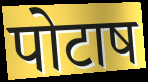
पोटाष